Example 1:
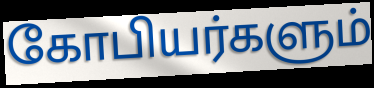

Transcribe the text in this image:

கோபியர்களும்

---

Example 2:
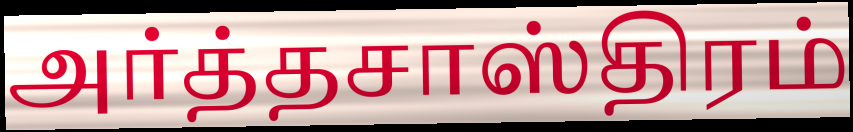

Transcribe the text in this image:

அர்த்தசாஸ்திரம்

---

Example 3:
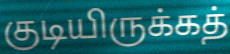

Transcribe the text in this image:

குடியிருக்கத்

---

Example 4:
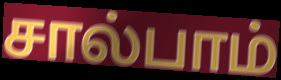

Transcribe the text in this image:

சால்பாம்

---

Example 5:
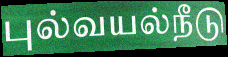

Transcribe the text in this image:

புல்வயல்நீடு